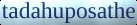
tadahuposathe